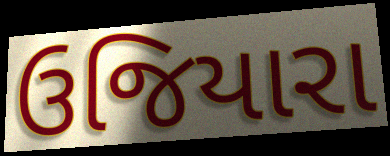
ઉજિયારા